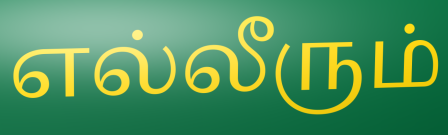
எல்லீரும்